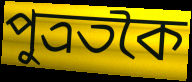
পুত্ৰতকৈ